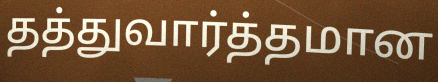
தத்துவார்த்தமான